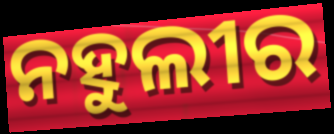
ନହୁଲୀର